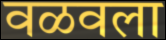
वळवला